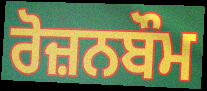
ਰੋਜ਼ਨਬੌਮ